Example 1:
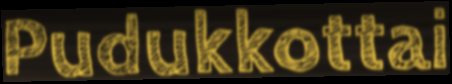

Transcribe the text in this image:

Pudukkottai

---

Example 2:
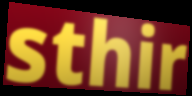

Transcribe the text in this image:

sthir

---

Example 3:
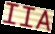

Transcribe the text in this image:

IIA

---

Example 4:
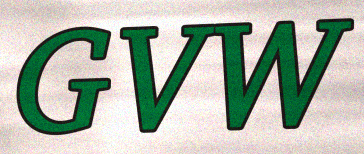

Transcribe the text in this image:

GVW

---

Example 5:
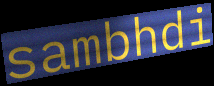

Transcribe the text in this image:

sambhdi